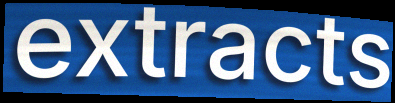
extracts